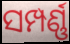
ସମ୍ପର୍ଣ୍ଣ